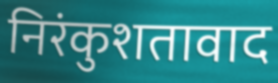
निरंकुशतावाद